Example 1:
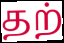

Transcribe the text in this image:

தற்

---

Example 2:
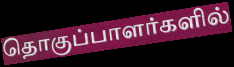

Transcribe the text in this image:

தொகுப்பாளர்களில்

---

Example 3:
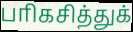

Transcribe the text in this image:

பரிகசித்துக்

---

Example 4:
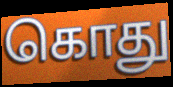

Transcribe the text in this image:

கொது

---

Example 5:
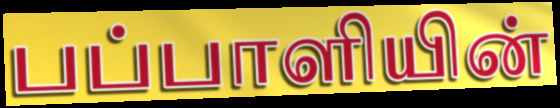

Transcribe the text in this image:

பப்பாளியின்